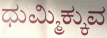
ಧುಮ್ಮಿಕ್ಕುವ